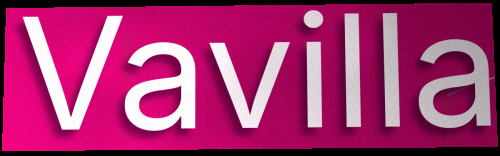
Vavilla